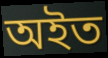
অইত